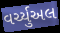
વર્ચ્યુઅલ